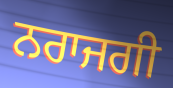
ਨਰਾਜਗੀ